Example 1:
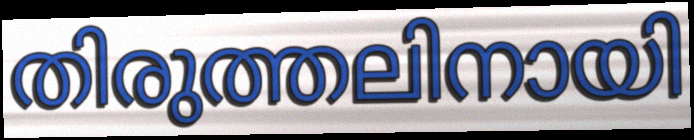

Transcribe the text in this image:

തിരുത്തലിനായി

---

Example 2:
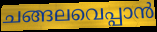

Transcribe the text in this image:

ചങ്ങലവെപ്പാൻ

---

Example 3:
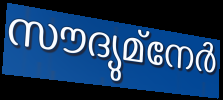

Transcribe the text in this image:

സൗദ്യുമ്നേർ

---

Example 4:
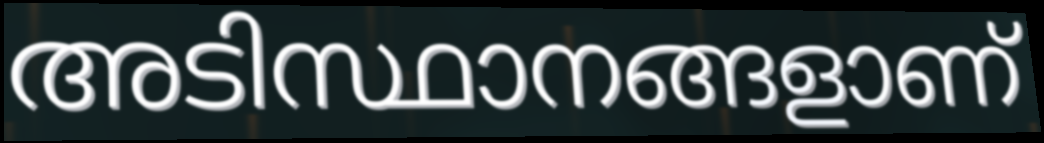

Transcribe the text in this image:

അടിസ്ഥാനങ്ങളാണ്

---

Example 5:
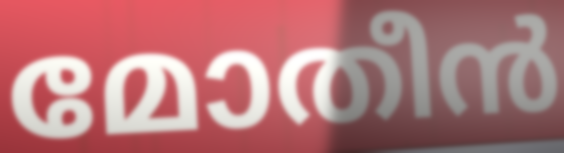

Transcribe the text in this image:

മോതീൻ